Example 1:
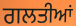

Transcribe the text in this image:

ਗਲਤੀਆਂ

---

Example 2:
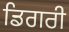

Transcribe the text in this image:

ਡਿਗਰੀ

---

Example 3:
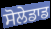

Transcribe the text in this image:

ਸੋਲੇਡਾਡ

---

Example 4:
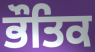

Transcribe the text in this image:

ਭੌਤਿਕ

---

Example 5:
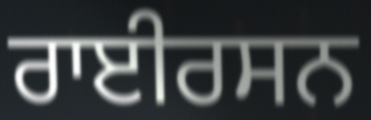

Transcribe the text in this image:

ਰਾਈਰਸਨ